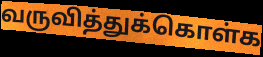
வருவித்துக்கொள்க